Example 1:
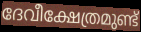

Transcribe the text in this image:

ദേവീക്ഷേത്രമുണ്ട്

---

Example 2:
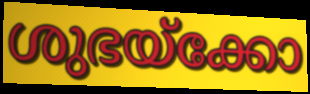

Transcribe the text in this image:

ശുഭയ്ക്കോ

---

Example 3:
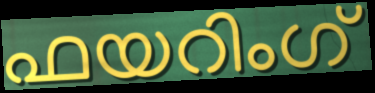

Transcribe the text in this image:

ഫയറിംഗ്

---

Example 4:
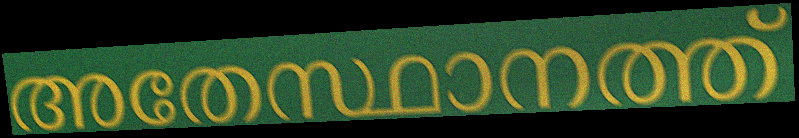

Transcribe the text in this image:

അതേസ്ഥാനത്ത്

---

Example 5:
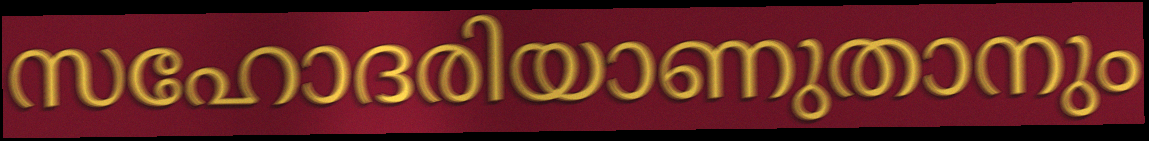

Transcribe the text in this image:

സഹോദരിയാണുതാനും